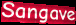
Sangave